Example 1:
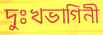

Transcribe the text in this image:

দুঃখভাগিনী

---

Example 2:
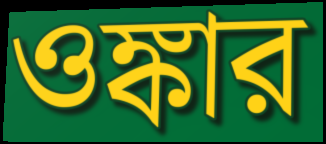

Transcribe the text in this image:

ওঙ্কার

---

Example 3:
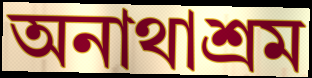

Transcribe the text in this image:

অনাথাশ্রম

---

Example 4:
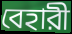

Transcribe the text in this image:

বেহারী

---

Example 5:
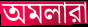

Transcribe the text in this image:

অমলারা